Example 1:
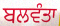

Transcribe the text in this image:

ਬਲਵੰਤਾ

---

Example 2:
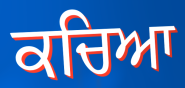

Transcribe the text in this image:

ਕਚਿਆ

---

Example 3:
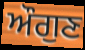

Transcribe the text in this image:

ਔਗੁਣ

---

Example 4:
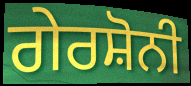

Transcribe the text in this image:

ਗੇਰਸ਼ੋਨੀ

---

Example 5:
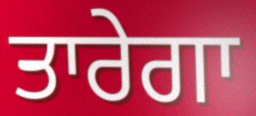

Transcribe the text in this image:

ਤਾਰੇਗਾ